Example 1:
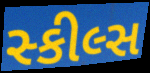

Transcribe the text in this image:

સ્કીલ્સ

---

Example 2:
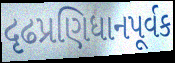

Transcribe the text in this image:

દૃઢપ્રણિધાનપૂર્વક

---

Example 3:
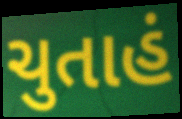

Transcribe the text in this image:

ચુતાહં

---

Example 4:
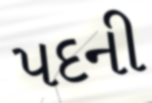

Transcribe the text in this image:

પદની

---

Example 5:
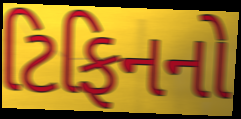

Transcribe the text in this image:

ટિફિનનો